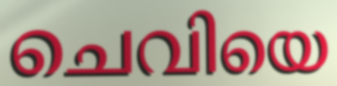
ചെവിയെ